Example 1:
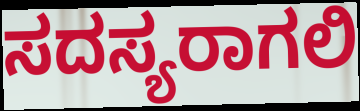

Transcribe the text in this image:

ಸದಸ್ಯರಾಗಲಿ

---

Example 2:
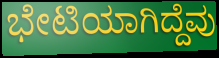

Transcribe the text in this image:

ಭೇಟಿಯಾಗಿದ್ದೆವು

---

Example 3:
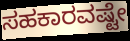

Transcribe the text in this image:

ಸಹಕಾರವಷ್ಟೇ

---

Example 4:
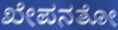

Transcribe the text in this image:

ಖೇಪನತೋ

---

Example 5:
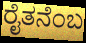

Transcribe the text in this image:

ರೈತನೆಂಬ